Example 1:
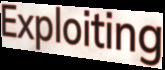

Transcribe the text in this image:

Exploiting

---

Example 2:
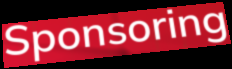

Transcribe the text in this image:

Sponsoring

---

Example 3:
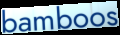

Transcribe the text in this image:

bamboos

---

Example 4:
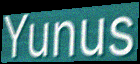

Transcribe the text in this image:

Yunus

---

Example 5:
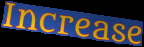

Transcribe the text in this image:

Increase